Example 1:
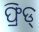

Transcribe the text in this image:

ଫ୍ରିଡ୍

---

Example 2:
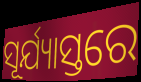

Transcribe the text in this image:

ସୂର୍ଯ୍ୟାସ୍ତରେ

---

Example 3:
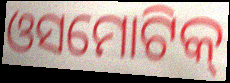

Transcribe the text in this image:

ଓସମୋଟିକ୍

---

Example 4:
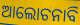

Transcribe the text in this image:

ଆଲୋଚନାବି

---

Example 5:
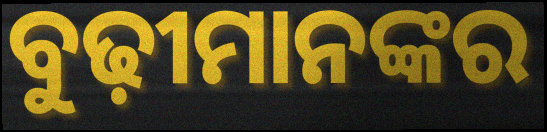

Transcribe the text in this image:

ବୁଢ଼ୀମାନଙ୍କର